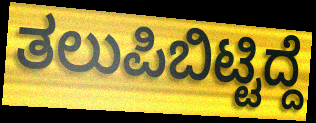
ತಲುಪಿಬಿಟ್ಟಿದ್ದೆ